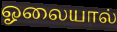
ஓலையால்